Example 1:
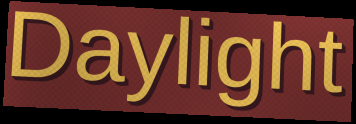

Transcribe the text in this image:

Daylight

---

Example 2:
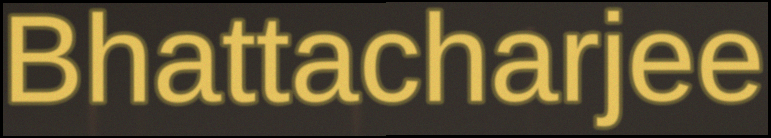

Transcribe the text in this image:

Bhattacharjee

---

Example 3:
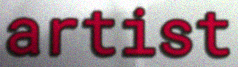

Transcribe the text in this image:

artist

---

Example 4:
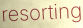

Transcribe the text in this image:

resorting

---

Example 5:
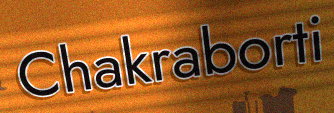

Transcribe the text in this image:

Chakraborti